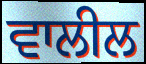
ਵਾਲੀਲ